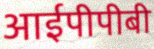
आईपीपीबी